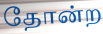
தோன்ற